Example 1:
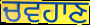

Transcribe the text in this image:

ਚਵਹਾਣ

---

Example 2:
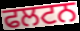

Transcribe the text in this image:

ਫਲਟਨ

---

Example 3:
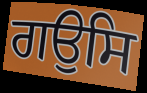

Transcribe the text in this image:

ਗਉਸਿ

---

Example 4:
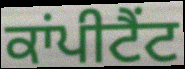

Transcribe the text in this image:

ਕਾਂਪੀਟੈਂਟ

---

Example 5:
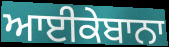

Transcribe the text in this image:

ਆਈਕੇਬਾਨਾ